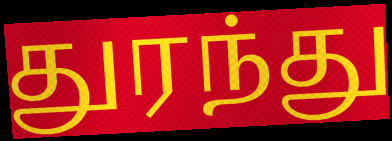
துரந்து